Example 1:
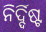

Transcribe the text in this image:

ନିର୍ଦ୍ଦିଷ୍ଟ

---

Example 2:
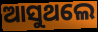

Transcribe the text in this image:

ଆସୁଥଲେ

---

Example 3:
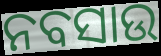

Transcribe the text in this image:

ନବସାଉ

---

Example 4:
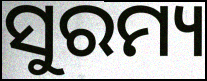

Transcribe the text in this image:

ସୁରମ୍ୟ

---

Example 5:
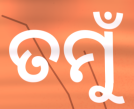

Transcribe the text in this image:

ତମୁଁ